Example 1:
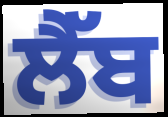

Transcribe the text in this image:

ਲੈੱਬ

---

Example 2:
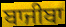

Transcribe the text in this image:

ਬਾਜੀਬਾ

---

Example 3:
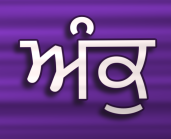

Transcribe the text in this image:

ਅੰਕੁ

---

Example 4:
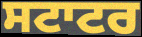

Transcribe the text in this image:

ਸਟਾਟਰ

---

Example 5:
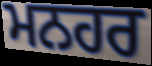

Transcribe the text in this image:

ਮਨਹਰ